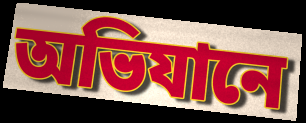
অভিযানে